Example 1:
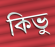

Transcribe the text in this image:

কিভু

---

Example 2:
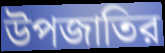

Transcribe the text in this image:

উপজাতির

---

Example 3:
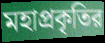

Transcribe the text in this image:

মহাপ্রকৃতির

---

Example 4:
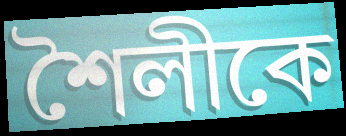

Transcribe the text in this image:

শৈলীকে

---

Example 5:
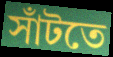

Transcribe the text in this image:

সাঁটতে